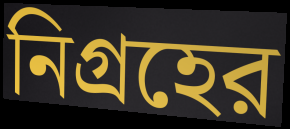
নিগ্রহের